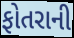
ફોતરાની